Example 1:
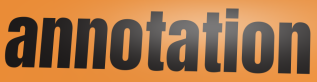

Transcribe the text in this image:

annotation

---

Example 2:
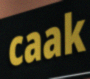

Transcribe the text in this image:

caak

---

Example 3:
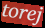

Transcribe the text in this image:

torej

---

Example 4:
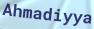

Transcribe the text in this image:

Ahmadiyya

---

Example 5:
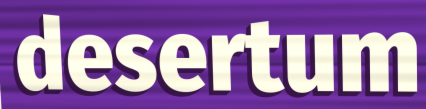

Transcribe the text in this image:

desertum